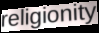
religionity